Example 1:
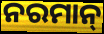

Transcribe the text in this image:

ନରମାନ୍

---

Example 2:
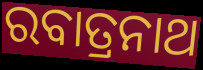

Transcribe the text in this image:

ରବାତ୍ରନାଥ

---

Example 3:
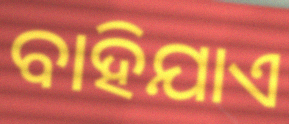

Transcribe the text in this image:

ବାହିଯାଏ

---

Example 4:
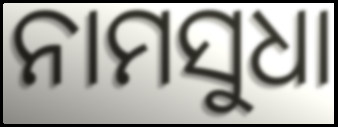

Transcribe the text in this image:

ନାମସୁଧା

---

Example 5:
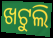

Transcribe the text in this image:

ଖଟୁଲି